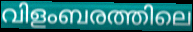
വിളംബരത്തിലെ